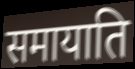
समायाति